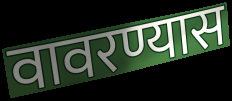
वावरण्यास